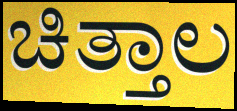
ಚಿತ್ತಾಲ